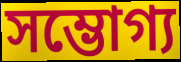
সম্ভোগ্য